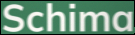
Schima